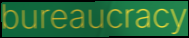
bureaucracy